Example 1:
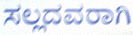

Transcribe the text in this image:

ಸಲ್ಲದವರಾಗಿ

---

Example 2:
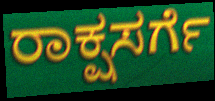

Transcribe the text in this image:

ರಾಕ್ಷಸರ್ಗೆ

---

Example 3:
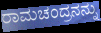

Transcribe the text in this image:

ರಾಮಚಂದ್ರನನ್ನು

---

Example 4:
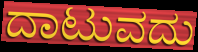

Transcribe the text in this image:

ದಾಟುವದು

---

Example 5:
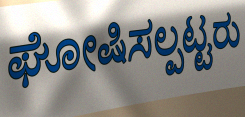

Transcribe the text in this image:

ಘೋಷಿಸಲ್ಪಟ್ಟರು